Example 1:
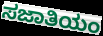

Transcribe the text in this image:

ಸಜಾತಿಯಂ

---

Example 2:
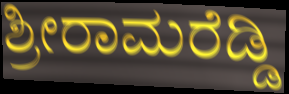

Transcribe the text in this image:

ಶ್ರೀರಾಮರೆಡ್ಡಿ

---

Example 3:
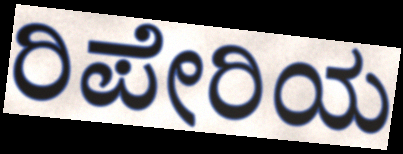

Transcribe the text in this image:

ರಿಪೇರಿಯ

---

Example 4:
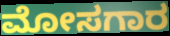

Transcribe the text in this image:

ಮೋಸಗಾರ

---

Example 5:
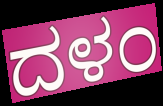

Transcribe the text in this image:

ದಳಂ